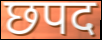
छपद